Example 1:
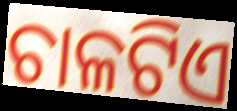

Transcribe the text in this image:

ଚାଳଟିଏ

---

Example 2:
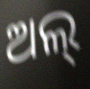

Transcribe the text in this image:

ଅଲ୍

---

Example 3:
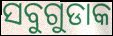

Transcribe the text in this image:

ସବୁଗୁଡାକ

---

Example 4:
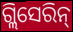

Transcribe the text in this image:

ଗ୍ଲିସେରିନ୍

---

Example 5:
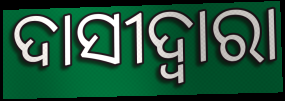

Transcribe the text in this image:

ଦାସୀଦ୍ୱାରା